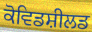
ਕੋਵਿਡਸ਼ੀਲਡ